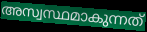
അസ്വസ്ഥമാകുന്നത്